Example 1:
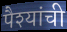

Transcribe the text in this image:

पैश्यांची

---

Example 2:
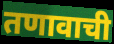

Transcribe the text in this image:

तणावाची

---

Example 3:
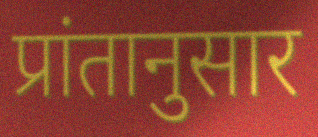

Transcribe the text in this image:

प्रांतानुसार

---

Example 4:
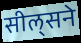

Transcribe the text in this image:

सील्सने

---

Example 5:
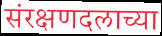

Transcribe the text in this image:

संरक्षणदलाच्या